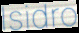
Isidro